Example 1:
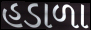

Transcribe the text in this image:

હડાળા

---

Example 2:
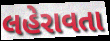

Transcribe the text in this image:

લહેરાવતા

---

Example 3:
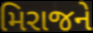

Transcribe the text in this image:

મિરાજને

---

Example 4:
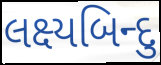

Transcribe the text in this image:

લક્ષ્યબિન્દુ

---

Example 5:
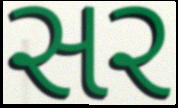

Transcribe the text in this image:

સર